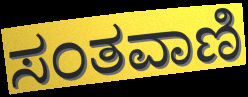
ಸಂತವಾಣಿ